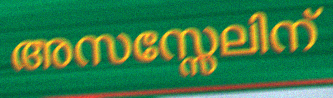
അസസ്സേലിന്